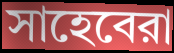
সাহেবেরা